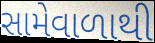
સામેવાળાથી